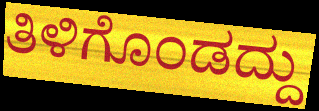
ತಿಳಿಗೊಂಡದ್ದು